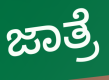
ಜಾತ್ರೆ